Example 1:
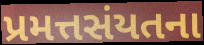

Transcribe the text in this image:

પ્રમત્તસંયતના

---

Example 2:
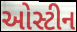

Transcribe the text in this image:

ઓસ્ટીન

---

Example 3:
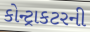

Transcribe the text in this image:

કોન્ટ્રાકટરની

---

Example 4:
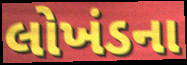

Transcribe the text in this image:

લોખંડના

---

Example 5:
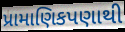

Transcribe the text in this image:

પ્રામાણિકપણાથી